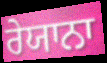
ਰੇਯਾਨਾ